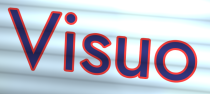
Visuo